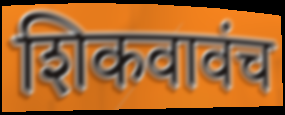
शिकवावंच